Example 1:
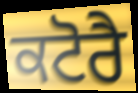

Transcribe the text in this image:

ਕਟੋਰੈ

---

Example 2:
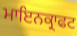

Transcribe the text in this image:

ਮਾਇਨਕ੍ਰਾਫਟ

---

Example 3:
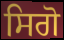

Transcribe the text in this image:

ਸਿਗੋ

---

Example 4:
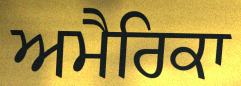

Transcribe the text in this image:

ਅਮੈਰਿਕਾ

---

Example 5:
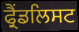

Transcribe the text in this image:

ਫ੍ਰੈਂਡਲਿਸਟ